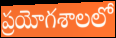
ప్రయోగశాలలో